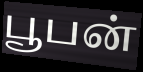
பூபன்